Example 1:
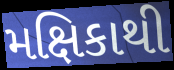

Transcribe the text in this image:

મક્ષિકાથી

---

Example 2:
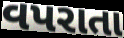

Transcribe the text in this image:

વપરાતા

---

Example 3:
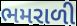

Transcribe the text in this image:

ભમરાળી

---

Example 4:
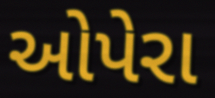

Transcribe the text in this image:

ઓપેરા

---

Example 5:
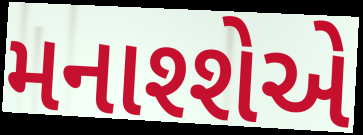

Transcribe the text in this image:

મનાશ્શેએ